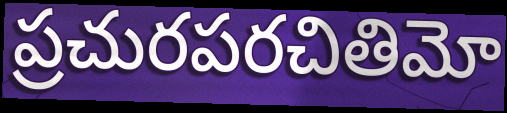
ప్రచురపరచితిమో